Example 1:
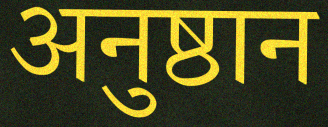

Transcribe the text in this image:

अनुष्ठान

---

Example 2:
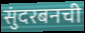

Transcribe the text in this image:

सुंदरबनची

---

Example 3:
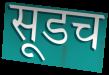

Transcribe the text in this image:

सूडच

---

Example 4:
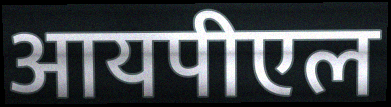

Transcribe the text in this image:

आयपीएल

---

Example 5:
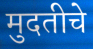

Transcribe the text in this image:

मुदतीचे